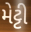
મેટ્ટી